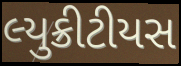
લ્યુક્રીટીયસ